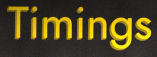
Timings